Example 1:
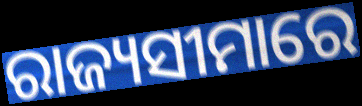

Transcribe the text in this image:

ରାଜ୍ୟସୀମାରେ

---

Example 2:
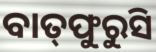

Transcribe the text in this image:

ବାତ୍‌ଫୁରୁସି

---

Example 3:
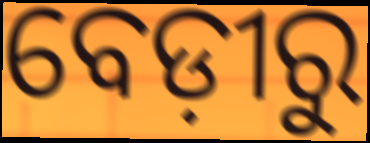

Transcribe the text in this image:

ବେଡ଼ୀରୁ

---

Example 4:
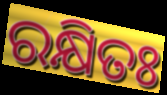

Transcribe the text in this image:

ରକ୍ଷିତଃ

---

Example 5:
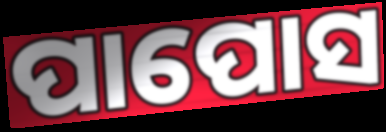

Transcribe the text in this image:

ପାପୋସ